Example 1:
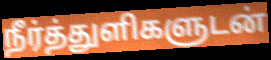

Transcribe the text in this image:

நீர்த்துளிகளுடன்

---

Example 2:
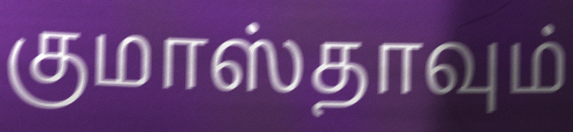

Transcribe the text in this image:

குமாஸ்தாவும்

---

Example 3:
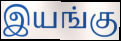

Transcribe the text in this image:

இயங்கு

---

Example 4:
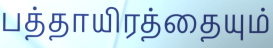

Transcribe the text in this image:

பத்தாயிரத்தையும்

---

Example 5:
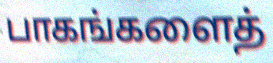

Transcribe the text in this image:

பாகங்களைத்